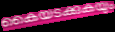
കൈയടക്കുകയും